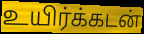
உயிர்க்கடன்